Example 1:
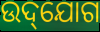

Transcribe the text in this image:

ଉଦ୍‌ଯୋଗ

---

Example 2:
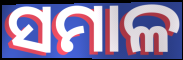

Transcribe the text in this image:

ସମାଳ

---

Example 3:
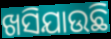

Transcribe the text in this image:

ଖସିଯାଉଛି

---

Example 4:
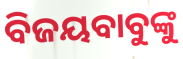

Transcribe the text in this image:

ବିଜୟବାବୁଙ୍କୁ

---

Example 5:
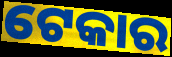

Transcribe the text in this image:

ଟେକାର